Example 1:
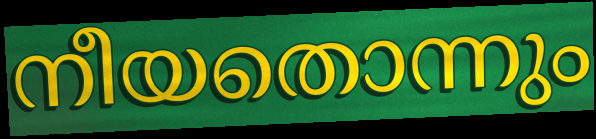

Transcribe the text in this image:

നീയതൊന്നും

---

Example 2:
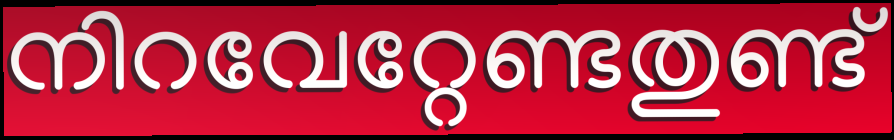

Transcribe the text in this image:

നിറവേറ്റേണ്ടതുണ്ട്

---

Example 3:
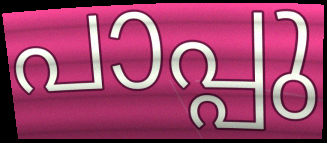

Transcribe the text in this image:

പാപ്പു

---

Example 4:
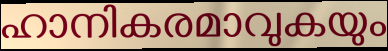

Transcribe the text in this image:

ഹാനികരമാവുകയും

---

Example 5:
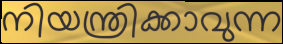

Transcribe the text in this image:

നിയന്ത്രിക്കാവുന്ന